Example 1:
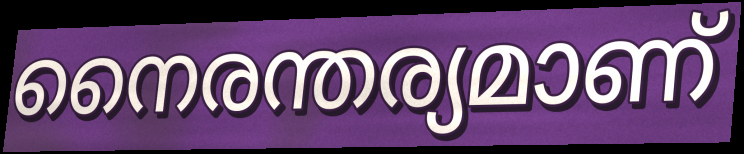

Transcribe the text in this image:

നൈരന്തര്യമാണ്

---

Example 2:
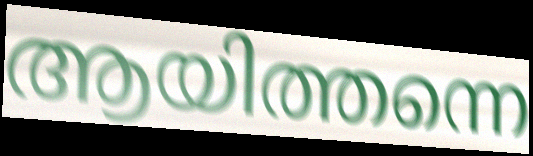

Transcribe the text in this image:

ആയിത്തന്നെ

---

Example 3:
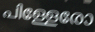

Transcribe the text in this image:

പിള്ളേരോ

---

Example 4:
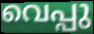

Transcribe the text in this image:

വെപ്പു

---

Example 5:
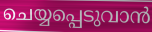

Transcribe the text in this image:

ചെയ്യപ്പെടുവാൻ